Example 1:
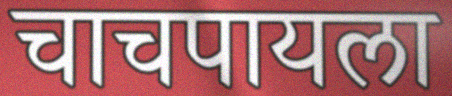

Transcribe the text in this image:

चाचपायला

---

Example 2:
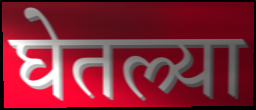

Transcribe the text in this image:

घेतल्या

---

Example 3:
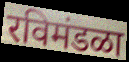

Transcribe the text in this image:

रविमंडळा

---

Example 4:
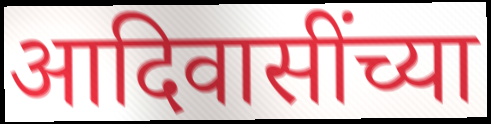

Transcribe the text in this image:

आदिवासींच्या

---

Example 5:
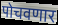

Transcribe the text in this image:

पोचवणार